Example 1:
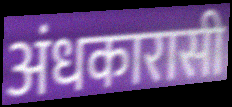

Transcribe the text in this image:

अंधकारासी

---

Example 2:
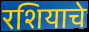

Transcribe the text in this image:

रशियाचे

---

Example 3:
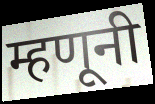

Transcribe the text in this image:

म्हणूनी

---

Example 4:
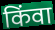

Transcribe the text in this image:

किंवा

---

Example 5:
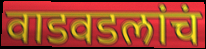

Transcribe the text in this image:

वाडवडलांचं